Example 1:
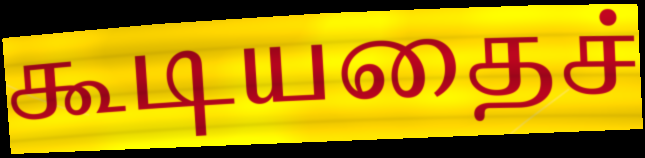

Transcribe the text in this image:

கூடியதைச்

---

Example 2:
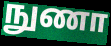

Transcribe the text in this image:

நுணா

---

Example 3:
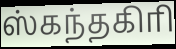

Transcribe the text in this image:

ஸ்கந்தகிரி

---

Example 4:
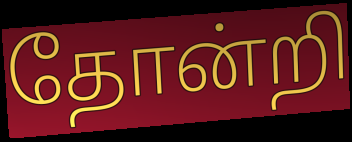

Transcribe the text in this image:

தோன்றி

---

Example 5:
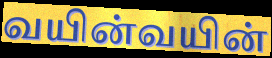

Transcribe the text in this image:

வயின்வயின்